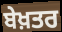
ਬੇਖ਼ਤਰ